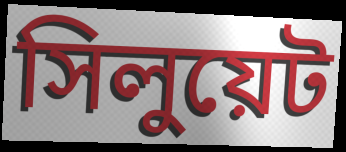
সিলুয়েট